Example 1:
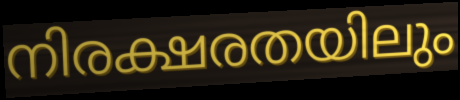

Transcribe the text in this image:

നിരക്ഷരതയിലും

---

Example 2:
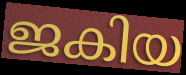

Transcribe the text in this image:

ജകിയ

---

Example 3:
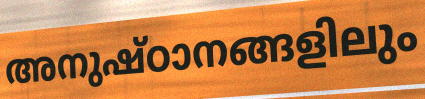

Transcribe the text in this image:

അനുഷ്ഠാനങ്ങളിലും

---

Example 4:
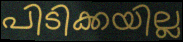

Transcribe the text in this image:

പിടിക്കയില്ല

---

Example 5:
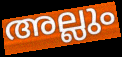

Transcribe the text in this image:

അല്ലും